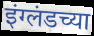
इंग्‍लंडच्या